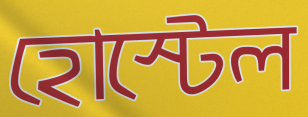
হোস্টেল